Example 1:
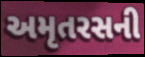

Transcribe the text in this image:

અમૃતરસની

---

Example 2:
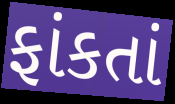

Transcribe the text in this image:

ફાંકતાં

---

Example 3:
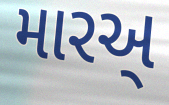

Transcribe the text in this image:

મારઅ્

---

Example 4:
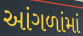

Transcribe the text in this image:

આંગળાંમાં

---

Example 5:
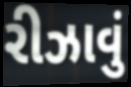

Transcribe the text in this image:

રીઝાવું